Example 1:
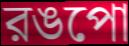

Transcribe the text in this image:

রঙপো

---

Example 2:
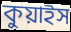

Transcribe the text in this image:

কুয়াইস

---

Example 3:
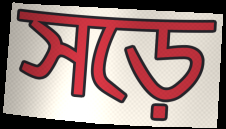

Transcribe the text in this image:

সড়ে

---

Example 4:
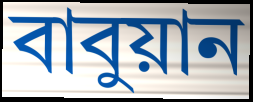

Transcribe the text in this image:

বাবুয়ান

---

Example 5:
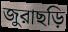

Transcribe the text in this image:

জুরাছড়ি